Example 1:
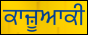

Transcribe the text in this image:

ਕਾਜ਼ੂਆਕੀ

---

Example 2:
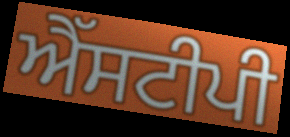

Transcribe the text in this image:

ਐੱਸਟੀਪੀ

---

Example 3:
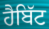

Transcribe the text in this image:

ਹੈਬਿੱਟ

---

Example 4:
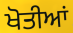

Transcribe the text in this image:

ਖੋਤੀਆਂ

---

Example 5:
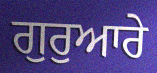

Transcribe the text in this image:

ਗੁਰੁਆਰੇ